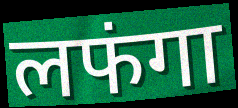
लफंगा